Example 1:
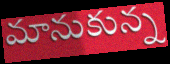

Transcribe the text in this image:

మానుకున్న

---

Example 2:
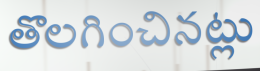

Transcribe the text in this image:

తొలగించినట్లు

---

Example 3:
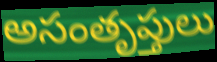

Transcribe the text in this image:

అసంతృప్తులు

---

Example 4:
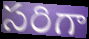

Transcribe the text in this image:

సరిగా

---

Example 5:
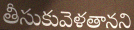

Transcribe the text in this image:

తీసుకువెళతానని